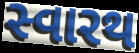
સ્વારથ